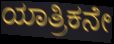
ಯಾತ್ರಿಕನೇ